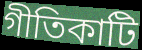
গীতিকাটি